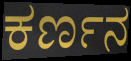
ಕರ್ಣನ